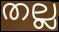
തല്ല